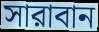
সারাবান